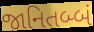
જાનિતબ્બં